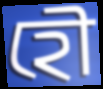
হৌ